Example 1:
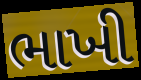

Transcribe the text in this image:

ભાખી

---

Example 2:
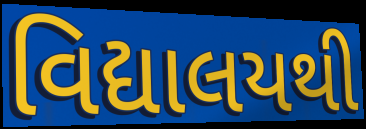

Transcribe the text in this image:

વિદ્યાલયથી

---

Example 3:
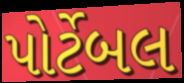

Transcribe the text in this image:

પોર્ટેબલ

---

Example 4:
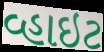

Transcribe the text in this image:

વ્હાઇટ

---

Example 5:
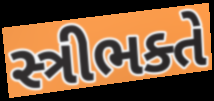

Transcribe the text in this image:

સ્ત્રીભક્તે